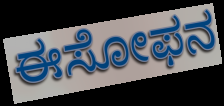
ಈಸೋಫನ